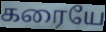
கரையே